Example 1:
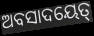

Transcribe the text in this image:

ଅବସାଦୟେତ୍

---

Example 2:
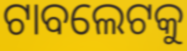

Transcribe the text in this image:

ଟାବଲେଟକୁ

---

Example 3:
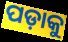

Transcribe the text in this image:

ପଡ଼ାକୁ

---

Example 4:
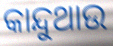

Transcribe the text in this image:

କାନ୍ଦୁଥାଉ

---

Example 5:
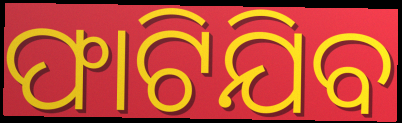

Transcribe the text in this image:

ଫାଟିଯିବ